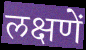
लक्षणें